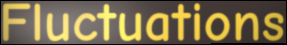
Fluctuations